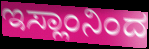
ಇಸ್ಲಾಂನಿಂದ